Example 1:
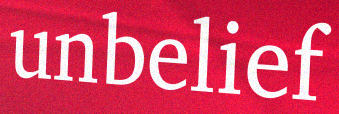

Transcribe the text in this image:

unbelief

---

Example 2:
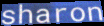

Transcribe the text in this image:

sharon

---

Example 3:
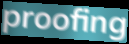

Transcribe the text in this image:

proofing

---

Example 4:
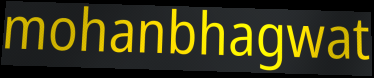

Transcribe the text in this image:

mohanbhagwat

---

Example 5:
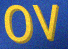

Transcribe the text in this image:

OV